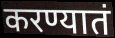
करण्यातं